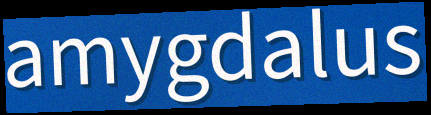
amygdalus